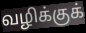
வழிக்குக்